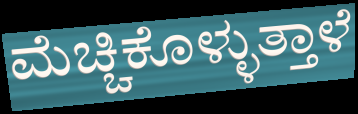
ಮೆಚ್ಚಿಕೊಳ್ಳುತ್ತಾಳೆ